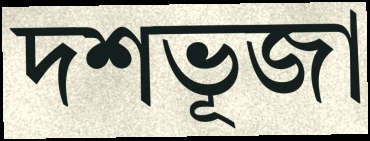
দশভূজা